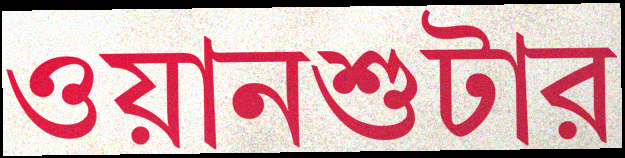
ওয়ানশুটার